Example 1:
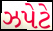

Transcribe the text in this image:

ઝપેટે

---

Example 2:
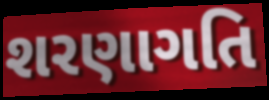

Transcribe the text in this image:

શરણાગતિ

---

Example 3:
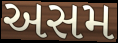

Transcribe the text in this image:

અસમ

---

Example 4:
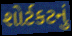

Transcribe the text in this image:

શોર્ટકટનું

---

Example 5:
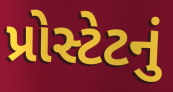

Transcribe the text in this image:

પ્રોસ્ટેટનું